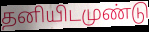
தனியிடமுண்டு